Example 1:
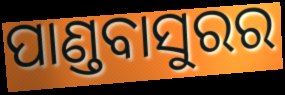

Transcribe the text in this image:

ପାଣ୍ଡବାସୁରର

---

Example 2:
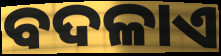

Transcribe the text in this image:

ବଦଳାଏ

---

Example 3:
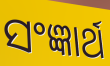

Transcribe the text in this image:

ସଂଜ୍ଞାର୍ଥ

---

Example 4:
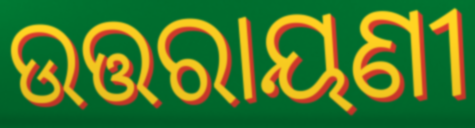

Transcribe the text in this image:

ଉତ୍ତରାୟଣୀ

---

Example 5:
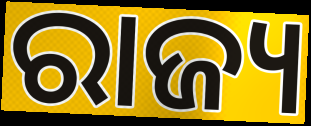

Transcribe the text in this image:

ରାଜ୍ୟ